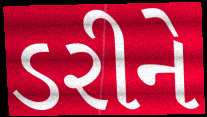
ડરીને